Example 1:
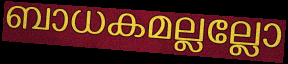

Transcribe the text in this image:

ബാധകമല്ലല്ലോ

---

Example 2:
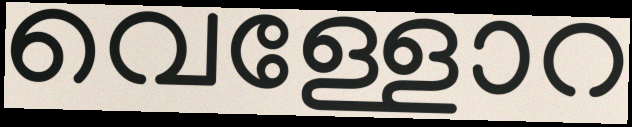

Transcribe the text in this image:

വെള്ളോറ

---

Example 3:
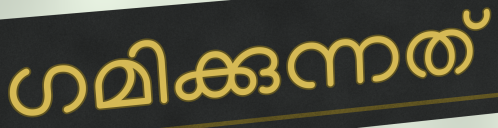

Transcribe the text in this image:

ഗമിക്കുന്നത്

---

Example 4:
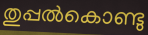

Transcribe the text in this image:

തുപ്പൽകൊണ്ടു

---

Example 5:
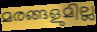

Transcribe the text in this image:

മരങ്ങളുമില്ല